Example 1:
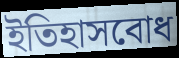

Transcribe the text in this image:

ইতিহাসবোধ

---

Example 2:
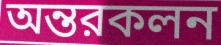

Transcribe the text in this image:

অন্তরকলন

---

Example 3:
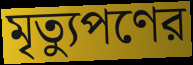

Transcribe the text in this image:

মৃত্যুপণের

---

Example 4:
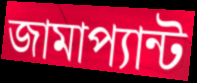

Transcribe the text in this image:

জামাপ্যান্ট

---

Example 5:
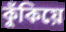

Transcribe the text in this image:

কুঁকিয়ে